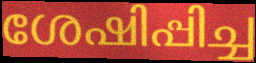
ശേഷിപ്പിച്ച